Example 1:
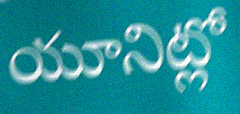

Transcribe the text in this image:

యూనిట్లో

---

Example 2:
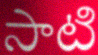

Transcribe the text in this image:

సాటి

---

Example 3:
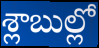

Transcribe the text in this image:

శ్లాబుల్లో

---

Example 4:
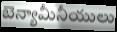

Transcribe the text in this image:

బెన్యామీనీయులు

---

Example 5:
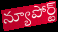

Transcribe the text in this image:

న్యూపోర్ట్